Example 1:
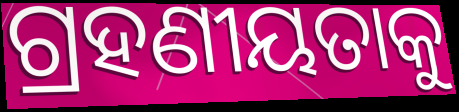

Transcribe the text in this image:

ଗ୍ରହଣୀୟତାକୁ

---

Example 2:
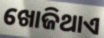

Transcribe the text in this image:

ଖୋଜିଥାଏ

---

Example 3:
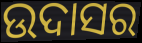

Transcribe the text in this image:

ଉଦାସର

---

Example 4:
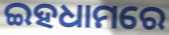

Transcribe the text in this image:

ଇହଧାମରେ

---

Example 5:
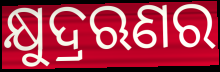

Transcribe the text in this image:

କ୍ଷୁଦ୍ରଋଣର